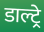
डाल्ट्रे